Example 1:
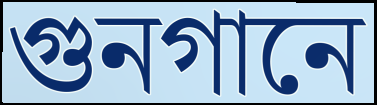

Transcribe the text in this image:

গুনগানে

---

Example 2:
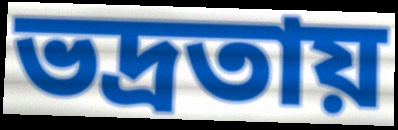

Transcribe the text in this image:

ভদ্রতায়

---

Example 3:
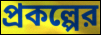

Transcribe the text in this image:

প্রকল্পের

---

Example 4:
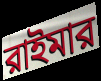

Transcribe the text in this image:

রাইমার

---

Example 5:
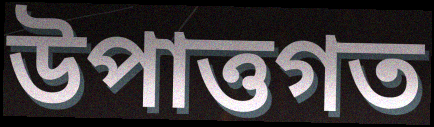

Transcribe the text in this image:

উপাত্তগত